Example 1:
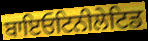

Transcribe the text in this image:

ਬਾਇਓਟਿਨੀਲੇਟਿਡ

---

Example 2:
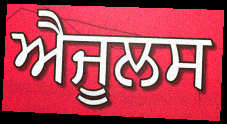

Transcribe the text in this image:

ਐਜੂਲਸ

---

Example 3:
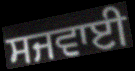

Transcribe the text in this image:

ਸਜਵਾਈ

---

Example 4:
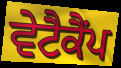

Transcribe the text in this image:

ਵੇਟੈਕੈਂਪ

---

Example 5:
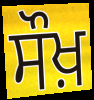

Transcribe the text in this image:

ਸੌਖ਼